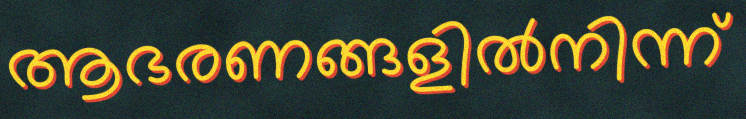
ആഭരണങ്ങളിൽനിന്ന്